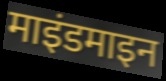
माइंडमाइन